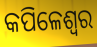
କପିଳେଶ୍ଵର